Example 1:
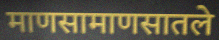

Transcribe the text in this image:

माणसामाणसातले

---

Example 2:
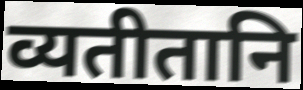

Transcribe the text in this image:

व्यतीतानि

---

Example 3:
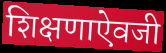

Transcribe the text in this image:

शिक्षणाऐवजी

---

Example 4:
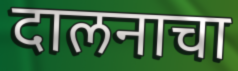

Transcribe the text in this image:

दालनाचा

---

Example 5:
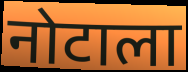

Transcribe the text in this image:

नोटाला